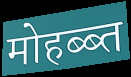
मोहब्ब्त